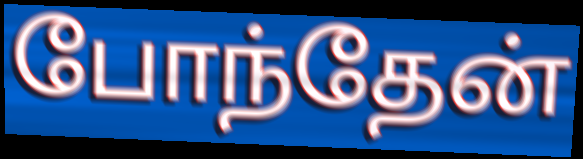
போந்தேன்